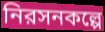
নিরসনকল্পে